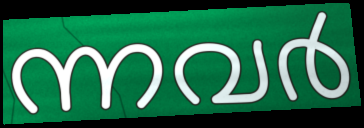
ന്നവർ